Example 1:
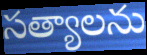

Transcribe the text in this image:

సత్యాలను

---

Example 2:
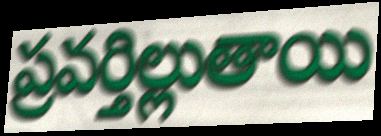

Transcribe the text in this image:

ప్రవర్తిల్లుతాయి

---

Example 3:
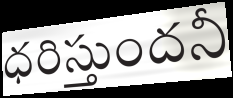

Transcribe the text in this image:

ధరిస్తుందనీ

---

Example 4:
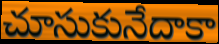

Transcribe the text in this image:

చూసుకునేదాకా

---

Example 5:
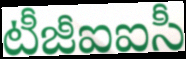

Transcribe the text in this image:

టీజీఐఐసీ